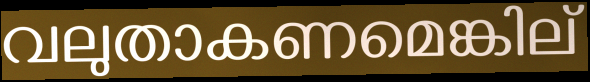
വലുതാകണമെങ്കില്